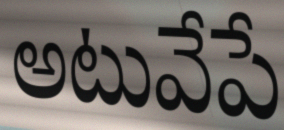
అటువేపే